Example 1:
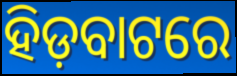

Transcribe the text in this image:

ହିଡ଼ବାଟରେ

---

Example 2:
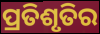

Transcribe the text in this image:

ପ୍ରତିଶୃତିର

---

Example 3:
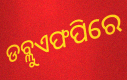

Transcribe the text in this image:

ଡବ୍ଲୁଏଫପିରେ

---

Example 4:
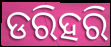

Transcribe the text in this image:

ଡରିହରି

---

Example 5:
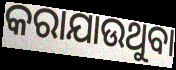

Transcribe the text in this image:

କରାଯାଉଥୁବା